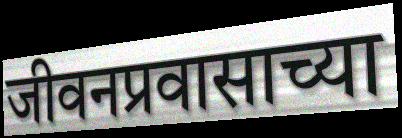
जीवनप्रवासाच्या